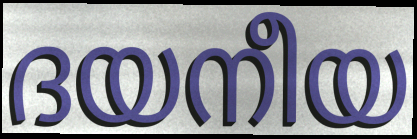
ദയനീയ